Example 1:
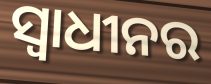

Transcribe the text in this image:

ସ୍ୱାଧୀନର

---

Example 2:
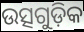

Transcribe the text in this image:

ଉତ୍ସଗୁଡ଼ିକ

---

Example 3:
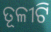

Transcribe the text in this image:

ତୂଳୀଟି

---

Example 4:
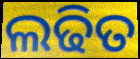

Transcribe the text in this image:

ଲଢିତ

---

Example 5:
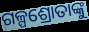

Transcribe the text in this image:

ଗଳ୍ପଶ୍ରୋତାଙ୍କୁ